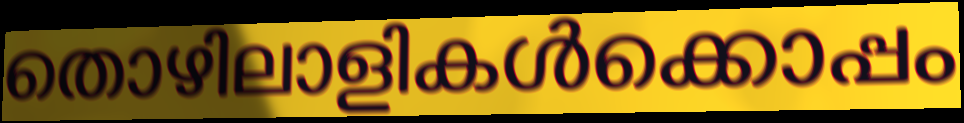
തൊഴിലാളികൾക്കൊപ്പം